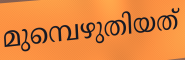
മുമ്പെഴുതിയത്